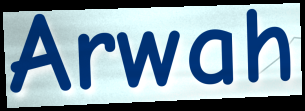
Arwah